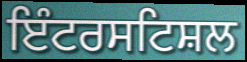
ਇੰਟਰਸਟਿਸ਼ਲ